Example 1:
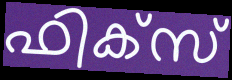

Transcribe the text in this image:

ഫിക്സ്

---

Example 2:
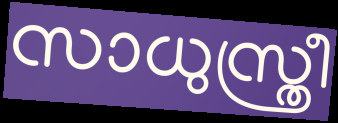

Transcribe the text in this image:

സാധുസ്ത്രീ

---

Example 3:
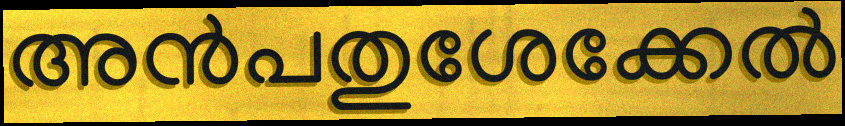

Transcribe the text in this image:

അൻപതുശേക്കേൽ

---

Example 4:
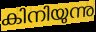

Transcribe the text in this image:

കിനിയുന്നു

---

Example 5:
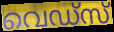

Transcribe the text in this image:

വെഡ്സ്